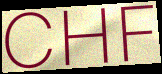
CHF